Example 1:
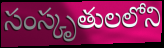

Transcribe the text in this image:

సంస్కృతులలోని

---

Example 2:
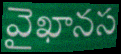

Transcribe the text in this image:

వైఖానస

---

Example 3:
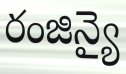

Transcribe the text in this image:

రంజిన్యై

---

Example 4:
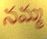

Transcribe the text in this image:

నమ్మ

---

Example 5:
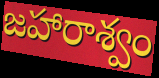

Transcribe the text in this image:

జహారాశ్వం